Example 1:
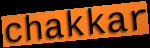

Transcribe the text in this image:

chakkar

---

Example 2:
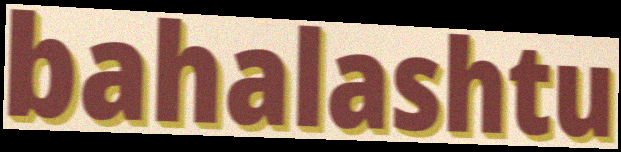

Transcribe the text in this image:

bahalashtu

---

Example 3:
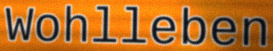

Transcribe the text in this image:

Wohlleben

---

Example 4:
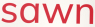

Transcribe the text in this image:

sawn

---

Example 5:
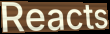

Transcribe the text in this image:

Reacts